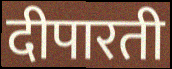
दीपारती